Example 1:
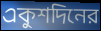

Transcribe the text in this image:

একুশদিনের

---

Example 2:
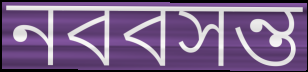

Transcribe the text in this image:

নববসন্ত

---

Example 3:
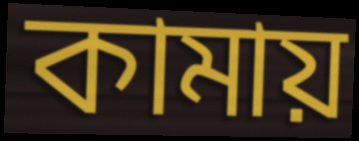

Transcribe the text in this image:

কামায়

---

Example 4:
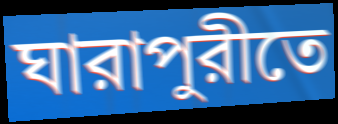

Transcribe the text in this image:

ঘারাপুরীতে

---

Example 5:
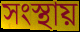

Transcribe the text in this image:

সংস্থায়